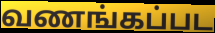
வணங்கப்பட